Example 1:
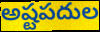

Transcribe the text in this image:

అష్టపదుల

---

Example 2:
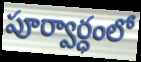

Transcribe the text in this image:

పూర్వార్ధంలో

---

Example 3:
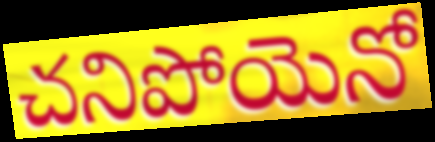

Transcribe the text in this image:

చనిపోయెనో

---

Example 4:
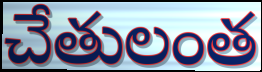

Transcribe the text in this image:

చేతులంత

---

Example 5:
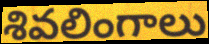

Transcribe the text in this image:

శివలింగాలు